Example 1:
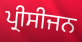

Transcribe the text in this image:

ਪ੍ਰੀਸੀਜਨ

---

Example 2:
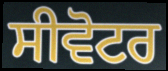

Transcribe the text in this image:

ਸੀਵੋਟਰ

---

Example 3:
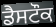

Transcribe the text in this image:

ਡੈਸਟੌਕ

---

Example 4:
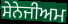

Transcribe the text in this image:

ਸੇਨੇਜੀਅਮ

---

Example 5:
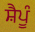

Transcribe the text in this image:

ਸ਼ੈਪੂੰ